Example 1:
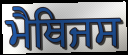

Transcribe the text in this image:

ਮੈਥਿਜਸ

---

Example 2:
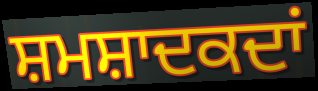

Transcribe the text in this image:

ਸ਼ਮਸ਼ਾਦਕਦਾਂ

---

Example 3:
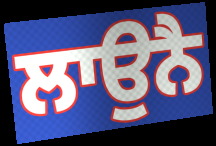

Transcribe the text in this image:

ਲਾਉਨੈ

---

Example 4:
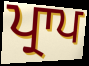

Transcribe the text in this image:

ਪ੍ਰਾਪ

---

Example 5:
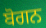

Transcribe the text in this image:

ਬੋਗਨ